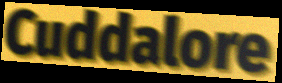
Cuddalore